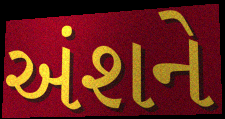
અંશને